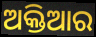
ଅକ୍ତିଆର